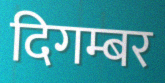
दिगम्बर